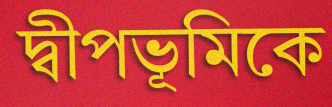
দ্বীপভূমিকে